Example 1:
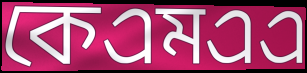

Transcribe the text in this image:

কেএমএএ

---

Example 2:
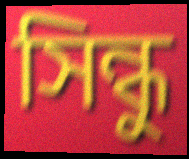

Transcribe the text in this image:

সিন্ধু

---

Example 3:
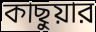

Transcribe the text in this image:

কাছুয়ার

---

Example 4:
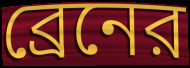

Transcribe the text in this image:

ব্রেনের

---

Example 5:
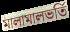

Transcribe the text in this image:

মালামালভর্তি